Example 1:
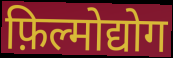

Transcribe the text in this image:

फ़िल्मोद्योग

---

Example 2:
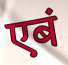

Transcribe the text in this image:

एबं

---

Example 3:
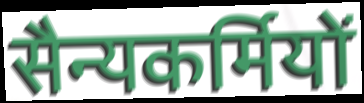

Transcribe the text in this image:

सैन्यकर्मियों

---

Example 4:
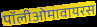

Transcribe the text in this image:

पॉलीओमावायरस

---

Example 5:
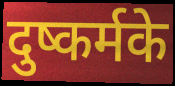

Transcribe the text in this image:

दुष्कर्मके